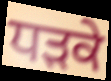
ਧੜਕੇ